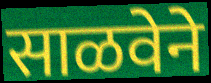
साळवेने